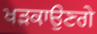
ਖੜਕਾਉਣਗੇ